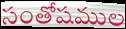
సంతోషముల